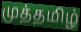
முத்தமிழ்